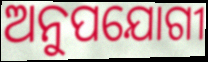
ଅନୁପଯୋଗୀ